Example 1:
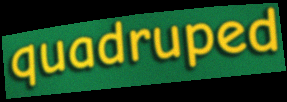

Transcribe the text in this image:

quadruped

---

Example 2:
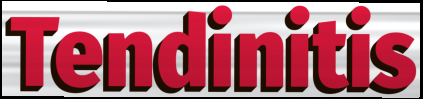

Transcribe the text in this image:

Tendinitis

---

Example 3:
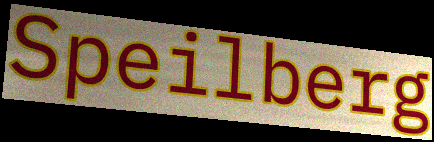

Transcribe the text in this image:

Speilberg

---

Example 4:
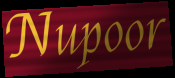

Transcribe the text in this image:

Nupoor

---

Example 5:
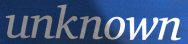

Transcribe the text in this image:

unknown